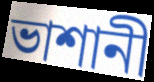
ভাশানী